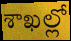
శాఖల్లో